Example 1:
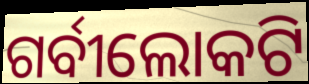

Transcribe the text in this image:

ଗର୍ବୀଲୋକଟି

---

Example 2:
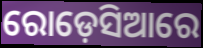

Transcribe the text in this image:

ରୋଡ଼େସିଆରେ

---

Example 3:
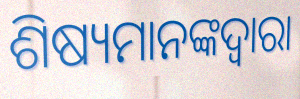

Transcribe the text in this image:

ଶିଷ୍ୟମାନଙ୍କଦ୍ୱାରା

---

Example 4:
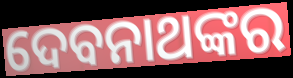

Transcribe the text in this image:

ଦେବନାଥଙ୍କର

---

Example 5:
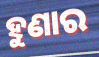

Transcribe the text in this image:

ହୁଣାର